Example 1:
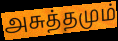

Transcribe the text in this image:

அசுத்தமும்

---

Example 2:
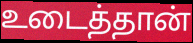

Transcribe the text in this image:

உடைத்தான்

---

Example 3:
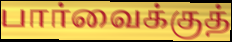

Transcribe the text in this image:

பார்வைக்குத்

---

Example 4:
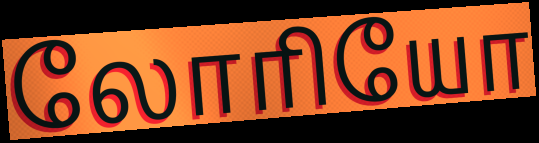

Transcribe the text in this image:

லோரியோ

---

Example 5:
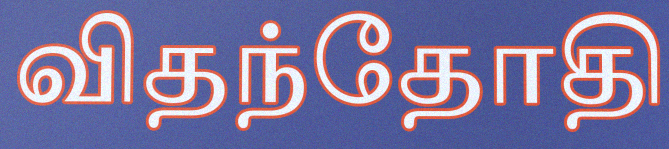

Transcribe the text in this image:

விதந்தோதி